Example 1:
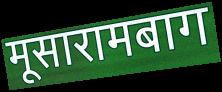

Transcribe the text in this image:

मूसारामबाग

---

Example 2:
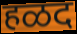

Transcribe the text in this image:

हळद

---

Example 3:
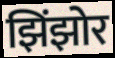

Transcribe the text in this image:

झिंझोर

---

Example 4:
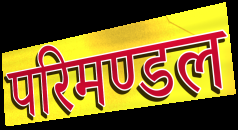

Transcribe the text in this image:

परिमण्डल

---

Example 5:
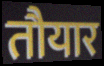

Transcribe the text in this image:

तौयार